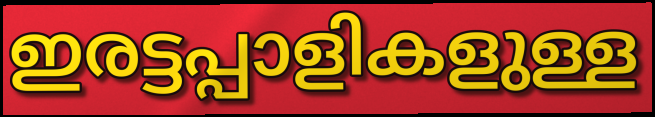
ഇരട്ടപ്പാളികളുള്ള